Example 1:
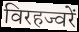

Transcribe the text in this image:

विरहज्वरें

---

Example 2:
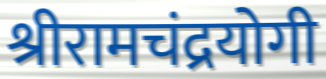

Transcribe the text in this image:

श्रीरामचंद्रयोगी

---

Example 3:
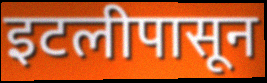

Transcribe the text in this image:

इटलीपासून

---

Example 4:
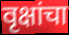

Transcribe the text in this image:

वृक्षांचा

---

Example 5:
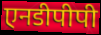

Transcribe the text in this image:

एनडीपीपी